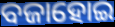
ବଜାହୋଇ